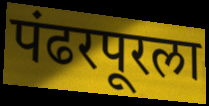
पंढरपूरला